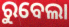
ରୁବେଲା